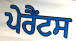
ਪੇਰੈਂਟਸ